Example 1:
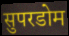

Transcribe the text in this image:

सुपरडोम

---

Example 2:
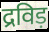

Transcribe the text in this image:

द्रविड़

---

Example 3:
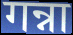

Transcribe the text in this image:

गन्ना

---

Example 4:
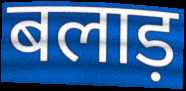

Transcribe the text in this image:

बलाड़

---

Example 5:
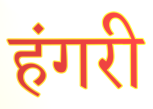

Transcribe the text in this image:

हंगरी